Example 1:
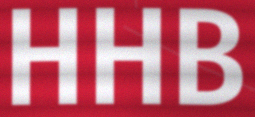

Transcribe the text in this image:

HHB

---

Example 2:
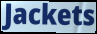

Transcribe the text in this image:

Jackets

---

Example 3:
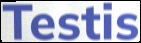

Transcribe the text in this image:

Testis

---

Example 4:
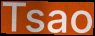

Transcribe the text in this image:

Tsao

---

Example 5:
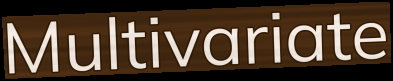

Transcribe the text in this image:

Multivariate